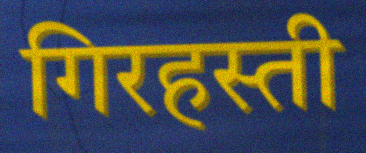
गिरहस्ती